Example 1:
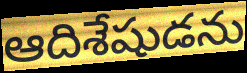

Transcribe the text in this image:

ఆదిశేషుడను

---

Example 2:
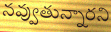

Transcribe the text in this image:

నవ్వుతున్నారని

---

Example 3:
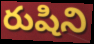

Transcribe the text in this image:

రుషిని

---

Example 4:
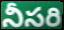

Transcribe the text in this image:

నీసరి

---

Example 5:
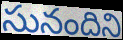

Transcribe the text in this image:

సునందిని